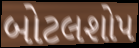
બોટલશોપ